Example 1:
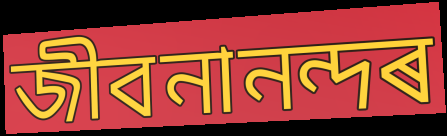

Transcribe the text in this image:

জীবনানন্দৰ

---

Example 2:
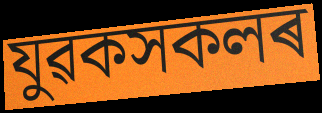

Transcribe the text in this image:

যুৱকসকলৰ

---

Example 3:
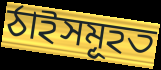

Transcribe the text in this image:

ঠাইসমূহত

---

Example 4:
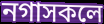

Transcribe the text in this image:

নগাসকলে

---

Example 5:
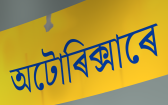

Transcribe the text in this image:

অটোৰিক্সাৰে